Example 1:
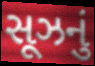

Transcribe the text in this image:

સૂઝનું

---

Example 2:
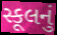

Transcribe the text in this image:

સ્કૂલનું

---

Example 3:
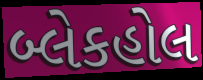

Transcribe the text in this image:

બ્લેકહોલ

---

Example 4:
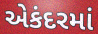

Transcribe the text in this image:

એકંદરમાં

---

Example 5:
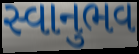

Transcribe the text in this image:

સ્વાનુભવ